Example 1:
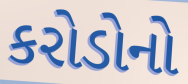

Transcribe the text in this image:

કરોડોનો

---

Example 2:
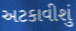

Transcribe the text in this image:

અટકાવીશું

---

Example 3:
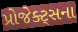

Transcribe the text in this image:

પ્રોજેક્ટ્સના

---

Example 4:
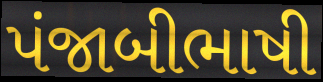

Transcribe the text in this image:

પંજાબીભાષી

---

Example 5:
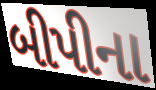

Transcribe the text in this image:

બીપીના